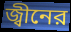
জ্বীনের